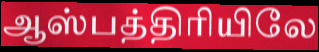
ஆஸ்பத்திரியிலே